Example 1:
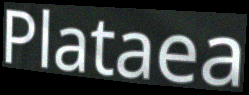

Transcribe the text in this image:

Plataea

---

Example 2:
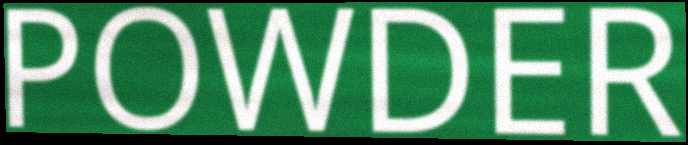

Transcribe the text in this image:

POWDER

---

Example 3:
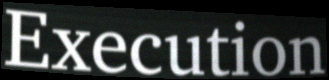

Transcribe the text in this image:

Execution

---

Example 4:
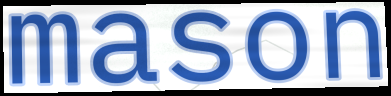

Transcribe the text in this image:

mason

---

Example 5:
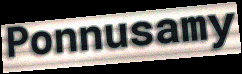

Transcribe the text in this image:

Ponnusamy